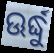
ଊର୍ଦ୍ଧୁ